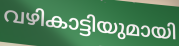
വഴികാട്ടിയുമായി